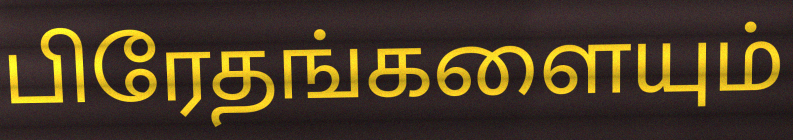
பிரேதங்களையும்